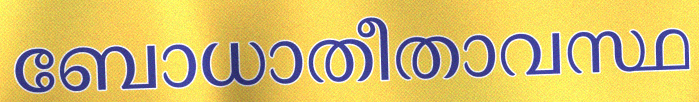
ബോധാതീതാവസ്ഥ